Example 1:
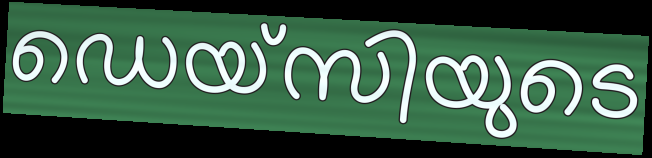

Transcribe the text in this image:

ഡെയ്സിയുടെ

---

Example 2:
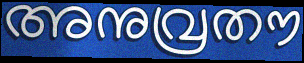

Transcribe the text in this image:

അനുവ്രതൗ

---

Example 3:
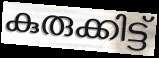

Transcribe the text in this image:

കുരുക്കിട്ട്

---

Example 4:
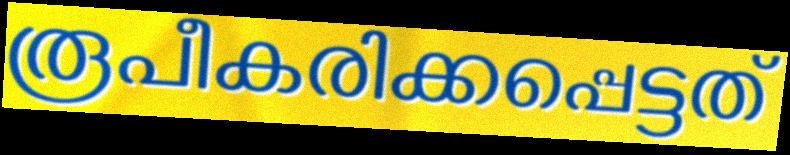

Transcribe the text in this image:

രൂപീകരിക്കപ്പെട്ടത്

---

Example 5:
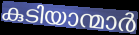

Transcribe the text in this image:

കുടിയാന്മാർ